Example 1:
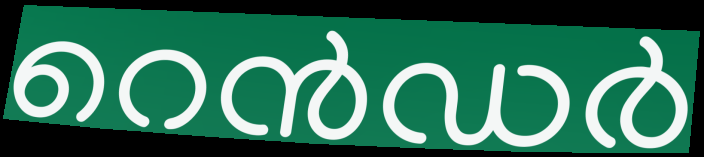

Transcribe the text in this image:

റെൻഡർ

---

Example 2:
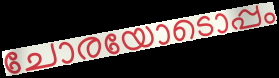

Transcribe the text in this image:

ചോരയോടൊപ്പം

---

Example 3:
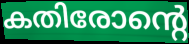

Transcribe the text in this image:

കതിരോന്റെ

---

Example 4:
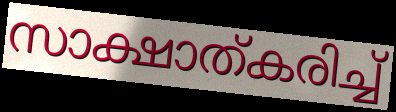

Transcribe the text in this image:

സാക്ഷാത്കരിച്ച്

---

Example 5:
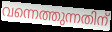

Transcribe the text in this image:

വന്നെത്തുന്നതിന്